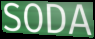
SODA